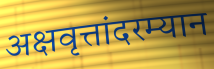
अक्षवृत्तांदरम्यान